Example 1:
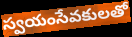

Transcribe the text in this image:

స్వయంసేవకులతో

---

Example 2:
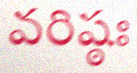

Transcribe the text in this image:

వరిష్ఠః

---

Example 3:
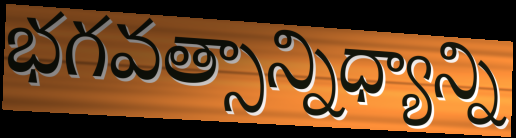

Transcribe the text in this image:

భగవత్సాన్నిధ్యాన్ని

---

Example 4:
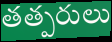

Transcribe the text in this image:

తత్పరులు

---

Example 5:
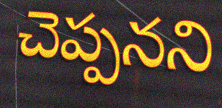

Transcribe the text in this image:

చెప్పనని